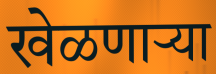
खेळणाऱ्या